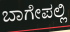
ಬಾಗೇಪಲ್ಲಿ